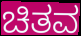
ಚಿತವ